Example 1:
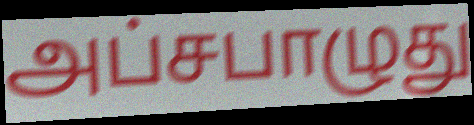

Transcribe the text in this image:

அப்சபாழுது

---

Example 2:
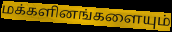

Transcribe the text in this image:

மக்களினங்களையும்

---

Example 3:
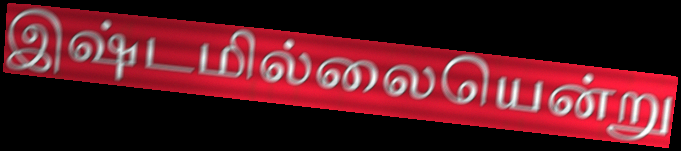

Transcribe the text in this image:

இஷ்டமில்லையென்று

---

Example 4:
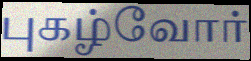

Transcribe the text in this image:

புகழ்வோர்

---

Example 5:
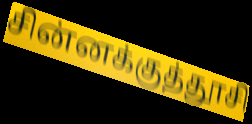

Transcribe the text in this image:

சின்னக்குத்தூசி